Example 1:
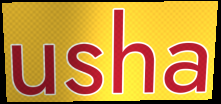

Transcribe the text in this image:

usha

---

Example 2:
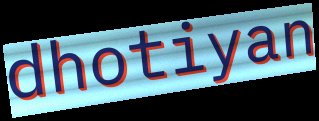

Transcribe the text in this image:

dhotiyan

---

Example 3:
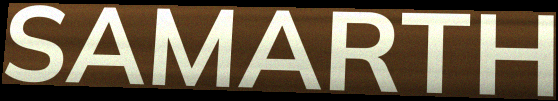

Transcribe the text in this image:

SAMARTH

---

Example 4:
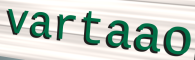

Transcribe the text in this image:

vartaao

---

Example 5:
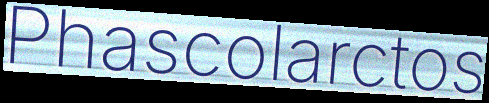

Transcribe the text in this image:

Phascolarctos